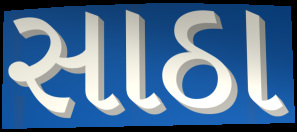
સાઠા